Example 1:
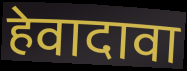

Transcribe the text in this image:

हेवादावा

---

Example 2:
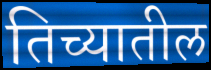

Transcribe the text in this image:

तिच्यातील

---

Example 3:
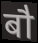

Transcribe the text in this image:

बौ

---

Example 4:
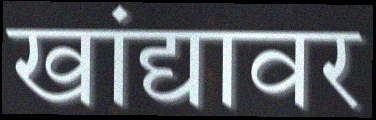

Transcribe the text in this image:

खांद्यावर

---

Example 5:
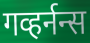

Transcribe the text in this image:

गव्हर्नन्स